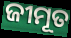
ଜୀମୂତ